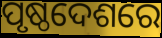
ପୃଷ୍ଠଦେଶରେ